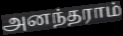
அனந்தராம்